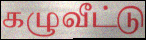
கழுவீட்டு